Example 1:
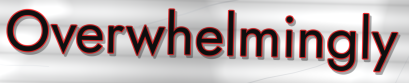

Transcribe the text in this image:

Overwhelmingly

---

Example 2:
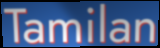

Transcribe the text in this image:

Tamilan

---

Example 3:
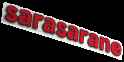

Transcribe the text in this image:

sarasarane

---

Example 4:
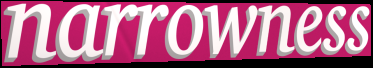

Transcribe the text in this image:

narrowness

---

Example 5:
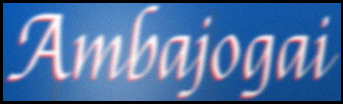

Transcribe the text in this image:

Ambajogai